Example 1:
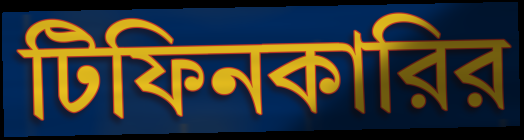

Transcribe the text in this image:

টিফিনকারির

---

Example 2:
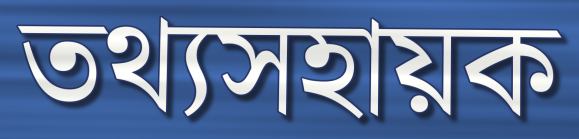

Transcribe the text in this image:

তথ্যসহায়ক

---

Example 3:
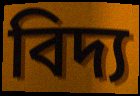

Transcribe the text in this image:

বিদ্য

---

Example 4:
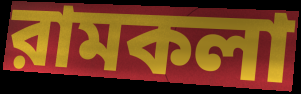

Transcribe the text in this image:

রামকলা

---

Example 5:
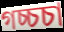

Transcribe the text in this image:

গচ্চচা